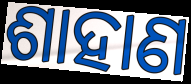
ଶାହାଣ